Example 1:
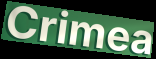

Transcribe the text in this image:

Crimea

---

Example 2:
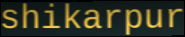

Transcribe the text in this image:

shikarpur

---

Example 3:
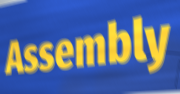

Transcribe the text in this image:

Assembly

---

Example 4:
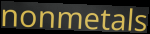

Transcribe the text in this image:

nonmetals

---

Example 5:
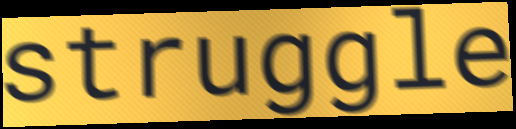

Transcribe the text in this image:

struggle